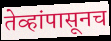
तेव्हांपासूनच